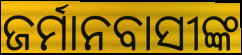
ଜର୍ମାନବାସୀଙ୍କ